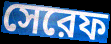
সেরেফ